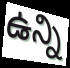
ఉన్ని